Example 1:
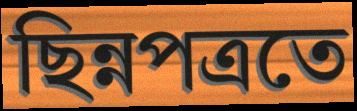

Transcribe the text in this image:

ছিন্নপত্রতে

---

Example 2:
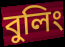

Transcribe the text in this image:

বুলিং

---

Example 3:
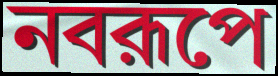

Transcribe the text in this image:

নবরূপে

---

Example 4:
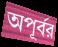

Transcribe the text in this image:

অপূর্বর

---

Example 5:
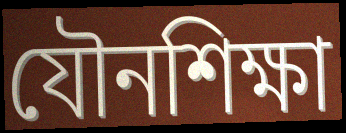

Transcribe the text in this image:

যৌনশিক্ষা